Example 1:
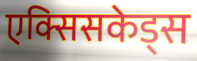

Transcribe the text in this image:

एक्सिसकेड्स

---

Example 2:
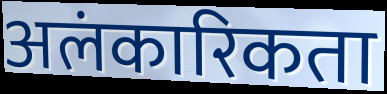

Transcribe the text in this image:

अलंकारिकता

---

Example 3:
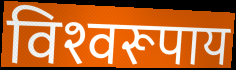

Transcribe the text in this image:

विश्वरूपाय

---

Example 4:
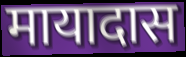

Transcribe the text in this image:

मायादास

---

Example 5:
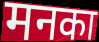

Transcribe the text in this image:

मनका